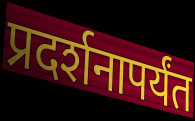
प्रदर्शनापर्यंत